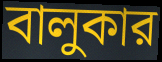
বালুকার